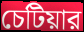
চেটিয়ার